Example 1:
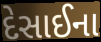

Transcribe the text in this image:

દેસાઈના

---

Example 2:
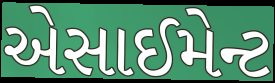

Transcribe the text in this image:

એસાઈમેન્ટ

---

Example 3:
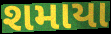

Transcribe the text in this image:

શમાયા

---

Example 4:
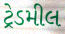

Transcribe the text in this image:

ટ્રેડમીલ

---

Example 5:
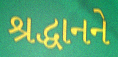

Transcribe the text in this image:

શ્રદ્ધાનને